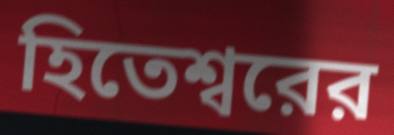
হিতেশ্বরের